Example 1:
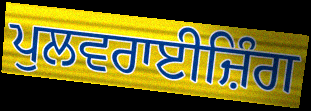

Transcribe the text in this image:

ਪੁਲਵਰਾਈਜ਼ਿੰਗ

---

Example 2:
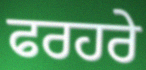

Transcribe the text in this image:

ਫਰਹਰੇ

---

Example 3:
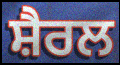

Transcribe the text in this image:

ਸ਼ੈਰਲ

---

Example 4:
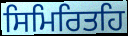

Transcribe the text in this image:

ਸਿਮਿਰਿਤਹਿ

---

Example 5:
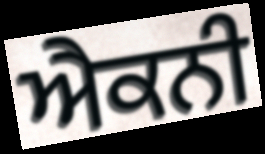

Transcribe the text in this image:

ਐਕਨੀ